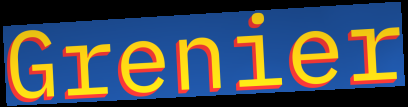
Grenier